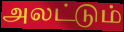
அலட்டும்